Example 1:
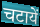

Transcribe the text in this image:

चटायें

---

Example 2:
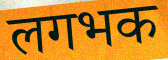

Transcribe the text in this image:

लगभक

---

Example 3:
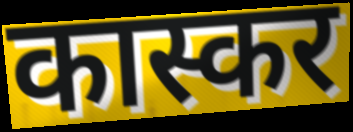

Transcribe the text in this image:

कास्कर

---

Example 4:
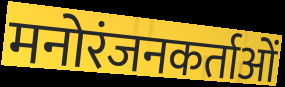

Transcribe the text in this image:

मनोरंजनकर्ताओं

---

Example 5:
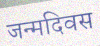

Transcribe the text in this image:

जन्मदिवस